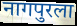
नागपुरला